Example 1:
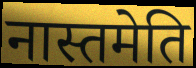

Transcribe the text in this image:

नास्तमेति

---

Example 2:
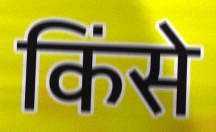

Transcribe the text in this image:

किंसे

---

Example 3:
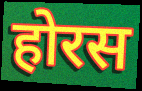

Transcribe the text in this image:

होरस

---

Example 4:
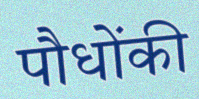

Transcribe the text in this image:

पौधोंकी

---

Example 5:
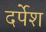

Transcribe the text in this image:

दर्पेश